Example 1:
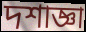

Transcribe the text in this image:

দশাজ্ঞা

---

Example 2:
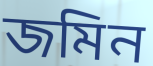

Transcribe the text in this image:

জমিন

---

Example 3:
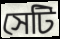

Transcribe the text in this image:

সেটি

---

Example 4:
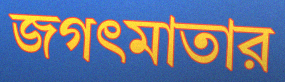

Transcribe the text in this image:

জগৎমাতার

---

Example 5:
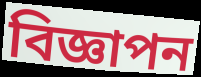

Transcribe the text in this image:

বিজ্ঞাপন